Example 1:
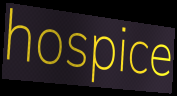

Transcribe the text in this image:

hospice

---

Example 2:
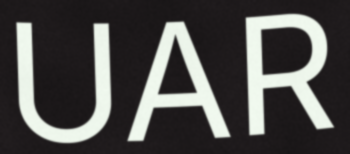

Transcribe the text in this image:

UAR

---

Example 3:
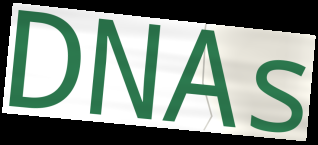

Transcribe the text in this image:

DNAs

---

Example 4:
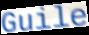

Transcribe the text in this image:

Guile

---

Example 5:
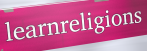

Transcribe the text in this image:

learnreligions